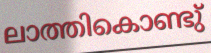
ലാത്തികൊണ്ടു്